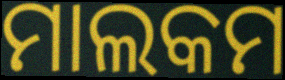
ମାଲକମ